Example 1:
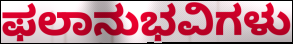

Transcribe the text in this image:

ಫಲಾನುಭವಿಗಳು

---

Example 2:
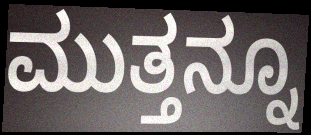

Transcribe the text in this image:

ಮುತ್ತನ್ನೂ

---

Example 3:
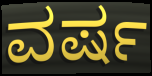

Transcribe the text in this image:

ವರ್ಷ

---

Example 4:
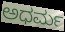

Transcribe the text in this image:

ಅಧರ್ಮ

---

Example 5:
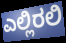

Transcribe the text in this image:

ಎಲ್ಲಿರಲಿ